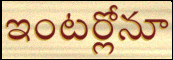
ఇంటర్లోనూ